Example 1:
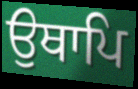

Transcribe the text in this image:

ਉਥਾਪਿ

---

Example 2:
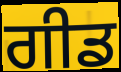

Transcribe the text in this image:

ਗੀਡ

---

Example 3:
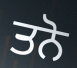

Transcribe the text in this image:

ਤਨੋ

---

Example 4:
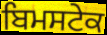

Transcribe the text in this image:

ਬਿਮਸਟੇਕ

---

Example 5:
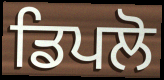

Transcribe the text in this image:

ਡਿਪਲੋ